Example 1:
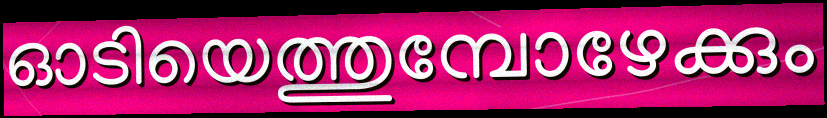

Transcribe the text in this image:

ഓടിയെത്തുമ്പോഴേക്കും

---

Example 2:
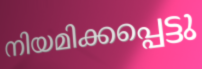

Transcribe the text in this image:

നിയമിക്കപ്പെട്ടു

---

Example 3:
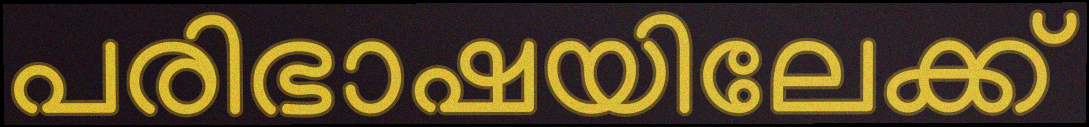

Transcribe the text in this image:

പരിഭാഷയിലേക്ക്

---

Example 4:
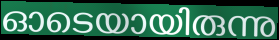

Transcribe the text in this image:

ഓടെയായിരുന്നു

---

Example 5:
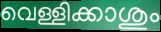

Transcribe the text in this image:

വെള്ളിക്കാശും